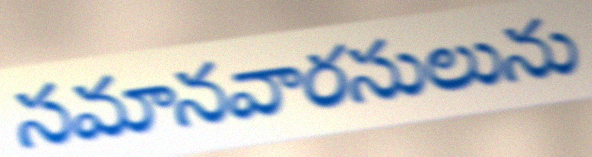
సమానవారసులును